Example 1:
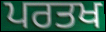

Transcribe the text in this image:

ਪਰਤਖ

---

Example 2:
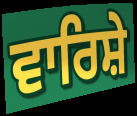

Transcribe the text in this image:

ਵਾਰਿਸ਼ੇ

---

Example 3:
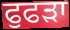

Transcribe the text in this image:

ਫੁਫੜਾ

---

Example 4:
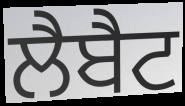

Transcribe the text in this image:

ਲੈਬੈਟ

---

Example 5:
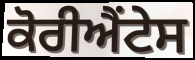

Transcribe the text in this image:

ਕੋਰੀਐਂਟੇਸ